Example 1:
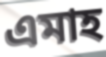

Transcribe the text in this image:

এমাহ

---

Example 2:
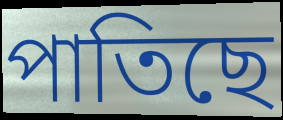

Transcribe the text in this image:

পাতিছে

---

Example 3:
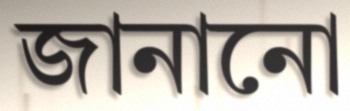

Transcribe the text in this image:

জানানো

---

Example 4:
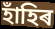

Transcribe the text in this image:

হাঁহিৰ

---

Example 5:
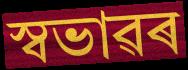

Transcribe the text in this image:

স্বভাৱৰ